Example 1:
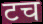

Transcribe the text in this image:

टच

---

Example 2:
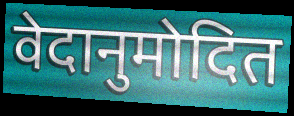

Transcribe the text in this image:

वेदानुमोदित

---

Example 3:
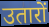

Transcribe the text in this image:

उतारों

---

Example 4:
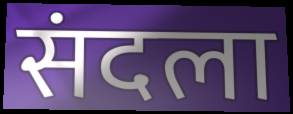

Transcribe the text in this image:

संदला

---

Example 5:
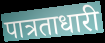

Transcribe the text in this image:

पात्रताधारी